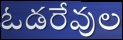
ఓడరేవుల